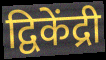
द्विकेंद्री